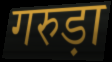
गरुड़ा